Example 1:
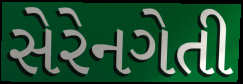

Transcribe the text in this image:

સેરેનગેતી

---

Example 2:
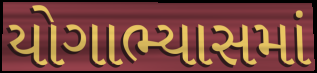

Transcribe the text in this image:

યોગાભ્યાસમાં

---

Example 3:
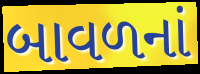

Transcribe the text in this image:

બાવળનાં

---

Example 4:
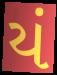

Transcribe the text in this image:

યં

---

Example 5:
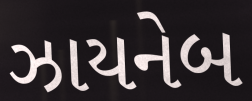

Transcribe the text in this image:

ઝાયનેબ